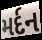
મર્દન